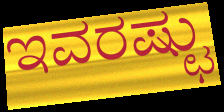
ಇವರಷ್ಟು